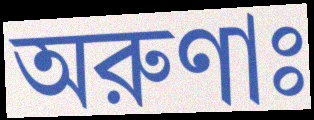
অরুণাঃ